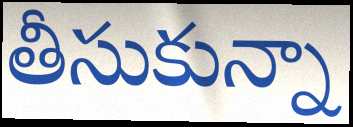
తీసుకున్నా